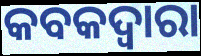
କବକଦ୍ୱାରା